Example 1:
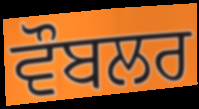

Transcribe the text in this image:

ਵੌਬਲਰ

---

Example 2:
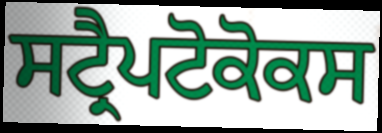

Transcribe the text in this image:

ਸਟ੍ਰੈਪਟੋਕੋਕਸ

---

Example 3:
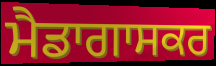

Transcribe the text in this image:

ਮੈਡਾਗਾਸਕਰ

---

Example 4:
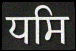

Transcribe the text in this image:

ਧਸਿ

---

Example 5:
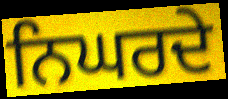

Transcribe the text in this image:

ਨਿਘਰਦੇ